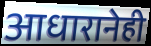
आधारानेही